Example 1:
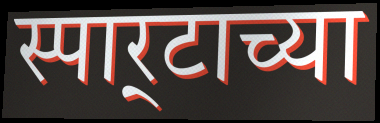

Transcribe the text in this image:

स्पार्टाच्या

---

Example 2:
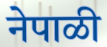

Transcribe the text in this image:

नेपाळी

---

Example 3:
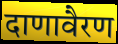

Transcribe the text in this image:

दाणावैरण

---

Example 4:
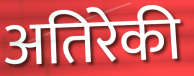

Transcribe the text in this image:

अतिरेकी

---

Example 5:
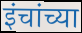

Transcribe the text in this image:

इंचांच्या